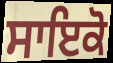
ਸਾਇਕੋ